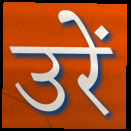
उरें